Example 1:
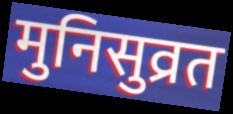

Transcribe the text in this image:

मुनिसुव्रत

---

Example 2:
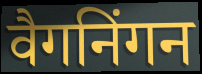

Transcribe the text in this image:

वैगनिंगन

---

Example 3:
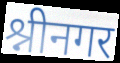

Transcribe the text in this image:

श्नीनगर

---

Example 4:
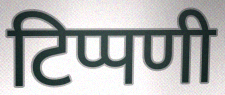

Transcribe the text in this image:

टिप्पणी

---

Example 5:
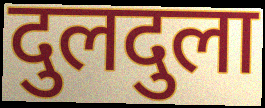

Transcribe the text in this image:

दुलदुला